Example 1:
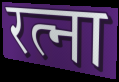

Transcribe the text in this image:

रत्ना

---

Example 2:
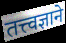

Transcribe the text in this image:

तत्त्वज्ञाने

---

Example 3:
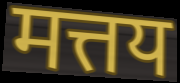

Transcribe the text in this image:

मत्तय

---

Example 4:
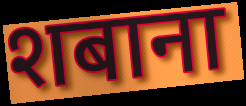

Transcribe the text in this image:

शबाना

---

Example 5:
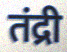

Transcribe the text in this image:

तंद्री